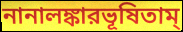
নানালঙ্কারভূষিতাম্